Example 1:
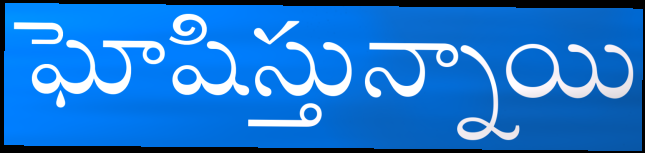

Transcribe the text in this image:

ఘోషిస్తున్నాయి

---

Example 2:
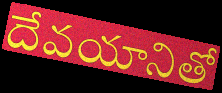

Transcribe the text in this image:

దేవయానితో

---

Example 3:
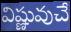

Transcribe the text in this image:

విష్ణువుచే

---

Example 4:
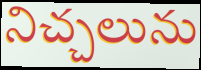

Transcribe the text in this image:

నిచ్చలును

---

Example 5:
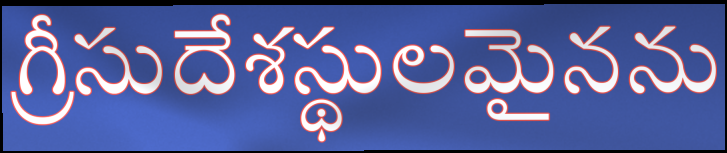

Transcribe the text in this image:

గ్రీసుదేశస్థులమైనను